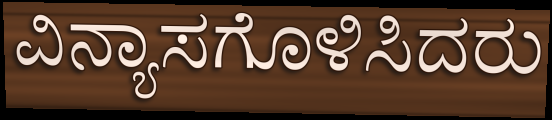
ವಿನ್ಯಾಸಗೊಳಿಸಿದರು